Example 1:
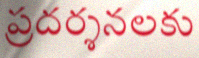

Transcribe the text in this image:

ప్రదర్శనలకు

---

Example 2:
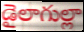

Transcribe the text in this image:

డైలాగుల్లా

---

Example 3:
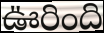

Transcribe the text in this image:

ఊరింది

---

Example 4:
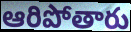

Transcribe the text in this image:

ఆరిపోతారు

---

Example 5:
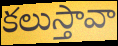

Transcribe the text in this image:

కలుస్తావా